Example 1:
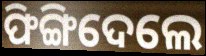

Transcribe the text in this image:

ଫିଙ୍ଗିଦେଲେ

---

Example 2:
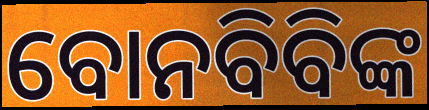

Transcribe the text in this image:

ବୋନବିବିଙ୍କ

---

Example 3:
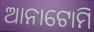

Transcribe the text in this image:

ଆନାଟୋମି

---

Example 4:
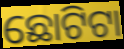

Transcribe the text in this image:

ଛୋଟିଟା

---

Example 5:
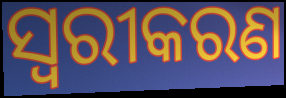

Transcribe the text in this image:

ସ୍ୱରୀକରଣ